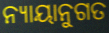
ନ୍ୟାୟାନୁଗତ